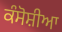
ਕੰਸੋਸ਼ੀਆ